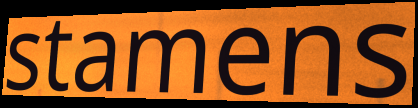
stamens